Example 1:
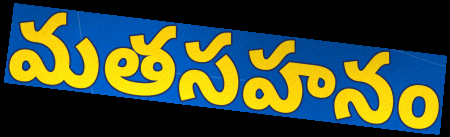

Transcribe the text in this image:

మతసహనం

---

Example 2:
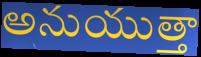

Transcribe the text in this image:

అనుయుత్తా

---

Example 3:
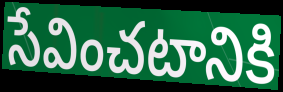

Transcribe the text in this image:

సేవించటానికి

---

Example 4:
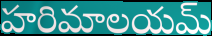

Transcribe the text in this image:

హరిమాలయమ్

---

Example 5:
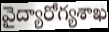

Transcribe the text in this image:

వైద్యారోగ్యశాఖ